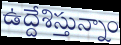
ఉద్దేశిస్తున్నాం